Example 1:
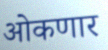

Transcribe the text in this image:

ओकणार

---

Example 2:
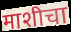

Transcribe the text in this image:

माशीचा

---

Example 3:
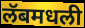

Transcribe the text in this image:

लॅबमधली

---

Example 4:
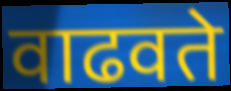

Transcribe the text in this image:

वाढवते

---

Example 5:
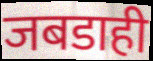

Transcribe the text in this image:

जबडाही